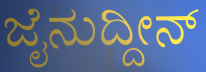
ಜೈನುದ್ದೀನ್